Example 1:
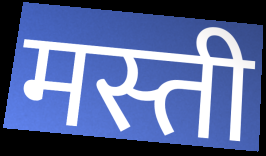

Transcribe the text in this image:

मस्‍ती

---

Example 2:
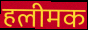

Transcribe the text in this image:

हलीमक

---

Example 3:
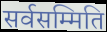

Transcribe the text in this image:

सर्वसम्मिति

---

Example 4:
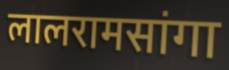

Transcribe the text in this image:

लालरामसांगा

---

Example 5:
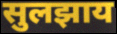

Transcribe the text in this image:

सुलझाय